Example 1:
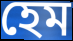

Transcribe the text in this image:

হেম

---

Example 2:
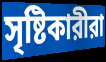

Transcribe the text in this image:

সৃষ্টিকারীরা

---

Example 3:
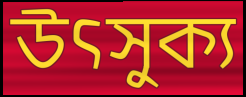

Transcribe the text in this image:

উৎসুক্য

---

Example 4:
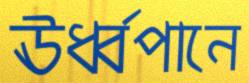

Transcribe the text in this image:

ঊর্ধ্বপানে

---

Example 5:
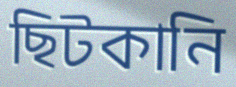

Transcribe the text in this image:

ছিটকানি